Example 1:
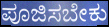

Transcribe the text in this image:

ಪೂಜಿಸಬೇಕು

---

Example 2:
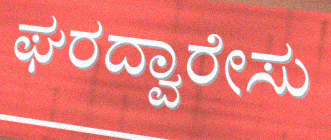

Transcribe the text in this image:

ಘರದ್ವಾರೇಸು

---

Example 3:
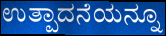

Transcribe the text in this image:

ಉತ್ಪಾದನೆಯನ್ನೂ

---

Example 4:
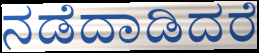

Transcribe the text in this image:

ನಡೆದಾಡಿದರೆ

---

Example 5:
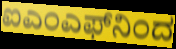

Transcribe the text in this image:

ಐಎಂಎಫ್‌ನಿಂದ